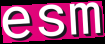
esm